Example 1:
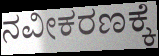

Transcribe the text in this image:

ನವೀಕರಣಕ್ಕೆ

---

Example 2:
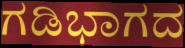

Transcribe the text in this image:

ಗಡಿಭಾಗದ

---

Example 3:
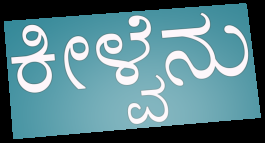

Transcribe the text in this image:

ಕೀಳ್ವೆನು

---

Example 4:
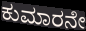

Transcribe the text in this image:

ಕುಮಾರನೇ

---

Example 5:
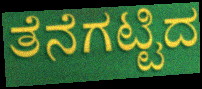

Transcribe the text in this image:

ತೆನೆಗಟ್ಟಿದ